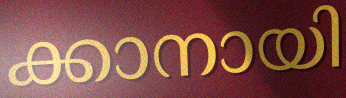
ക്കാനായി